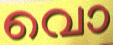
വൊ